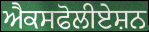
ਐਕਸਫੋਲੀਏਸ਼ਨ